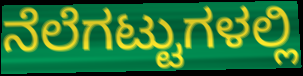
ನೆಲೆಗಟ್ಟುಗಳಲ್ಲಿ